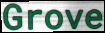
Grove